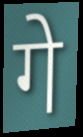
गे